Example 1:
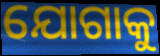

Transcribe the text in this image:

ଯୋଗାକୁ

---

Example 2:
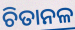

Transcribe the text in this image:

ଚିତାନଳ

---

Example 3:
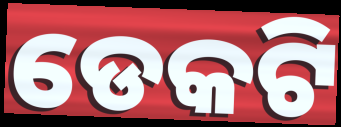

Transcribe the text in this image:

ଡେକଟି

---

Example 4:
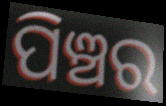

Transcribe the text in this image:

ପିଞ୍ଚର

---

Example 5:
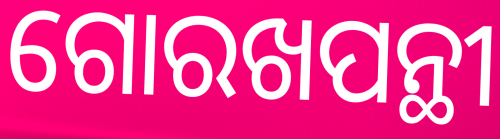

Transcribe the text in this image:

ଗୋରଖପନ୍ଥୀ